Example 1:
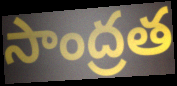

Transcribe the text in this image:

సాంద్రత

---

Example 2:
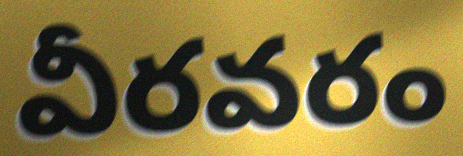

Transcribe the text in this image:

వీరవరం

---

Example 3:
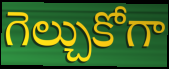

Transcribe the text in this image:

గెల్చుకోగా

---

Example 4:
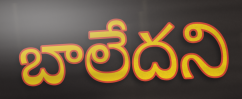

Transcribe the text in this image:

బాలేదని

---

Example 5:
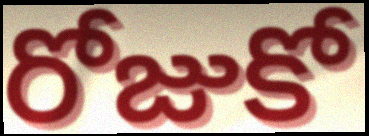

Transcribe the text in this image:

రోజుకో